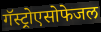
गॅस्ट्रोएसोफेजल